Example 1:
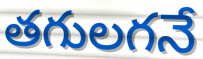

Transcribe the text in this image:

తగులగనే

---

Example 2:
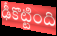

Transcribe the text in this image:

ఢీకొట్టింది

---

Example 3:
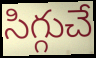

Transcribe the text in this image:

సిగ్గుచే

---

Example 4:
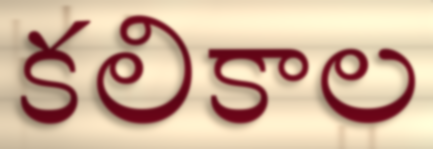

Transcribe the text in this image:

కలికాల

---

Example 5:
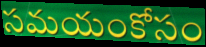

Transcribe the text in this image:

సమయంకోసం